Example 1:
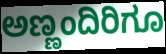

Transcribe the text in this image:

ಅಣ್ಣಂದಿರಿಗೂ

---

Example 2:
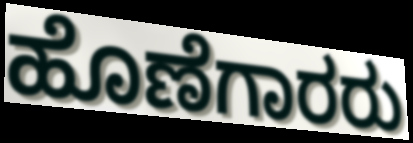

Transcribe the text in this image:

ಹೊಣೆಗಾರರು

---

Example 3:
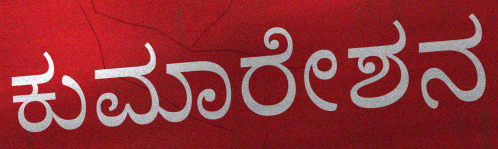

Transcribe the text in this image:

ಕುಮಾರೇಶನ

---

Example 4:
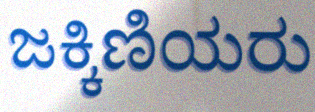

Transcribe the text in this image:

ಜಕ್ಕಿಣಿಯರು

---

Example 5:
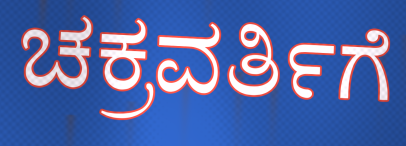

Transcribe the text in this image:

ಚಕ್ರವರ್ತಿಗೆ